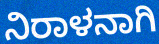
ನಿರಾಳನಾಗಿ